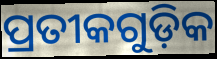
ପ୍ରତୀକଗୁଡ଼ିକ